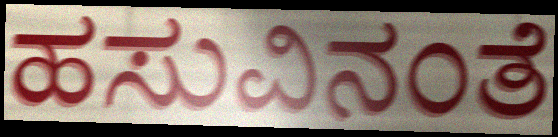
ಹಸುವಿನಂತೆ